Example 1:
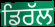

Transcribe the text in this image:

ਡਿਰੱਲ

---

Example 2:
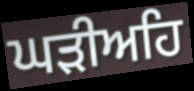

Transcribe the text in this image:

ਘੜੀਅਹਿ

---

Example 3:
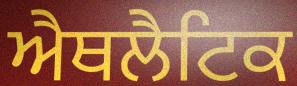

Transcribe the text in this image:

ਐਥਲੈਟਿਕ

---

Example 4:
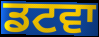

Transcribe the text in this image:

ਡਟਵਾ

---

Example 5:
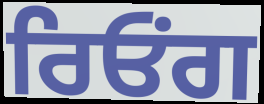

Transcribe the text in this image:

ਰਿਓਂਗ